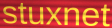
stuxnet